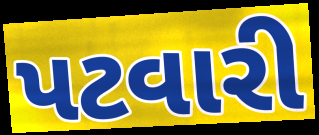
પટવારી